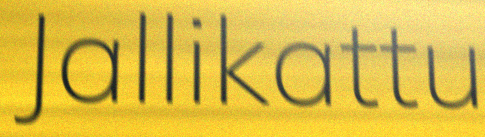
Jallikattu